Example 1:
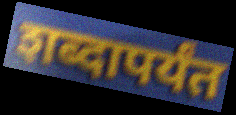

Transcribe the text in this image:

शब्दापर्यंत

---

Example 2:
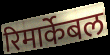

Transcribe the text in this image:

रिमार्केबल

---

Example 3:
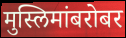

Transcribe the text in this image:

मुस्लिमांबरोबर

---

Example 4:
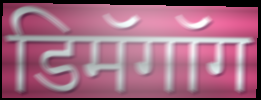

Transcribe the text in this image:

डिमॅगॉग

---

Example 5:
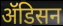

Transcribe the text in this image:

ॲडिसन